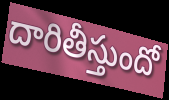
దారితీస్తుందో